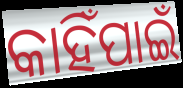
କାହିଁପାଇଁ